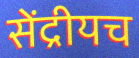
सेंद्रीयच